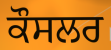
ਕੌਸਲਰ